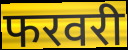
फरवरी